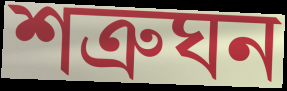
শত্ৰুঘন